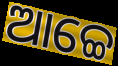
ଆଚ୍ଚେ